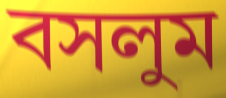
বসলুম